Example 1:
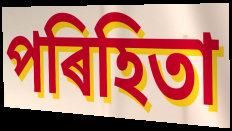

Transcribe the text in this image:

পৰিহিতা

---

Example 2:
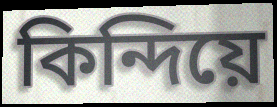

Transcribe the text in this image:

কিন্দিয়ে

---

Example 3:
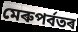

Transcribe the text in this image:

মেৰুপৰ্বতৰ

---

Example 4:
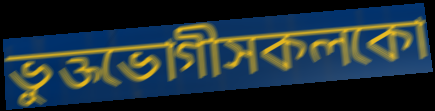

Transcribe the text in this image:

ভুক্তভোগীসকলকো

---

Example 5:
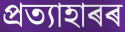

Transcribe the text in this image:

প্ৰত্যাহাৰৰ